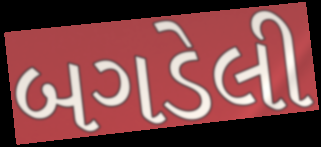
બગડેલી